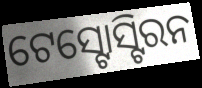
ଟେସ୍ଟୋସ୍ଟିରନ